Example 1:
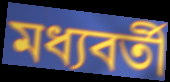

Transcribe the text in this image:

মধ্যবৰ্তী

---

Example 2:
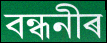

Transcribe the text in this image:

বন্ধনীৰ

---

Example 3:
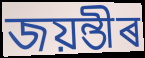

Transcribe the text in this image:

জয়ন্তীৰ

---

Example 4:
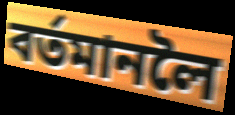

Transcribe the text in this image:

বৰ্তমানলৈ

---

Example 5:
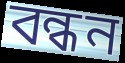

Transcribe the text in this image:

বন্ধন